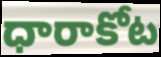
ధారాకోట